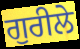
ਗੁਰੀਲੇ